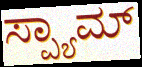
ಸ್ಪ್ಯಾಮ್